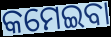
କମେଇବା